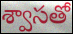
శ్వాసతో